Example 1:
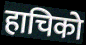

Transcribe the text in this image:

हाचिको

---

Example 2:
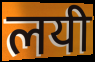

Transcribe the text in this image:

लयी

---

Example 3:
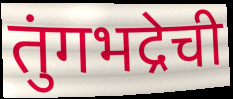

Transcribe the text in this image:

तुंगभद्रेची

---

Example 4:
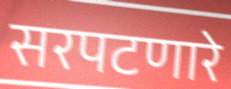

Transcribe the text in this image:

सरपटणारे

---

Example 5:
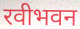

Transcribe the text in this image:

रवीभवन